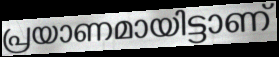
പ്രയാണമായിട്ടാണ്